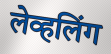
लेव्हलिंग